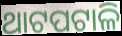
ଥାଟପଟାଳି